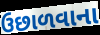
ઉછાળવાના